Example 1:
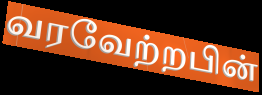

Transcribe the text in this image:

வரவேற்றபின்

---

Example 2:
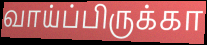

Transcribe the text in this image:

வாய்ப்பிருக்கா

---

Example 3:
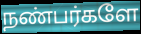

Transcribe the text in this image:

நண்பர்களே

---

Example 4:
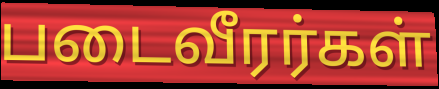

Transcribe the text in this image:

படைவீரர்கள்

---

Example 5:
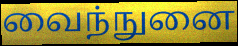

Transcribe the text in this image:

வைந்நுனை